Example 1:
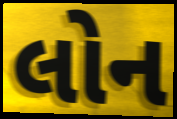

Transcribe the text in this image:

લોન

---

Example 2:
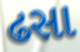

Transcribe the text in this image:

ઢસા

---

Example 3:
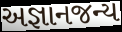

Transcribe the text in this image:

અજ્ઞાનજન્ય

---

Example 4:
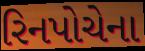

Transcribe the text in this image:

રિનપોચેના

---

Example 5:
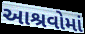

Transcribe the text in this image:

આશ્રવોમાં